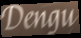
Dengu